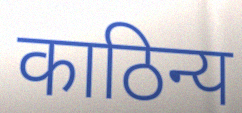
काठिन्य